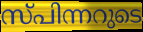
സ്പിന്നറുടെ